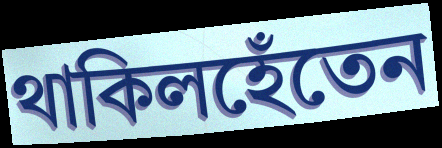
থাকিলহেঁতেন